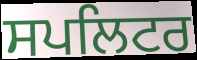
ਸਪਲਿਟਰ